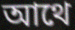
আথে